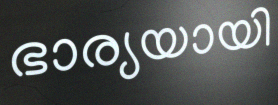
ഭാര്യയായി